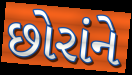
છોરાંને